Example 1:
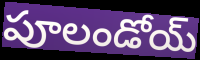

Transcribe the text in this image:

పూలండోయ్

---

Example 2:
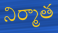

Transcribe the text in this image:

నిర్మాత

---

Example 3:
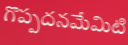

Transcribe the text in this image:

గొప్పదనమేమిటి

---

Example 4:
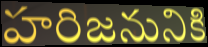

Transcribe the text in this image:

హరిజనునికి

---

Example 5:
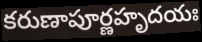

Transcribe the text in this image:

కరుణాపూర్ణహృదయః